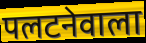
पलटनेवाला